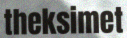
theksimet